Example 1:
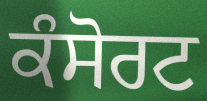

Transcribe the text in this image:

ਕੰਸੋਰਟ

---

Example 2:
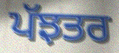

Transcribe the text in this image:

ਪੱਝਤਰ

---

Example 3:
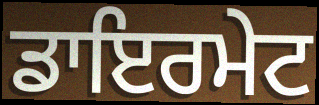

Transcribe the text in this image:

ਡਾਇਰਮੇਟ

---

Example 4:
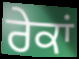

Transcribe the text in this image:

ਰੇਕਾਂ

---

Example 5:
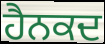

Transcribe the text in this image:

ਹੈਨਕਦ